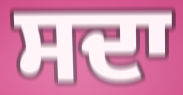
ਸਦਾ